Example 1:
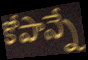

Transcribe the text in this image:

కోపాన్నే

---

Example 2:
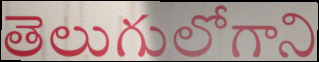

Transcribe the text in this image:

తెలుగులోగాని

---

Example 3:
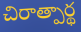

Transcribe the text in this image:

చిరాత్పార్థ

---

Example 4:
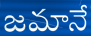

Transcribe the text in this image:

జమానే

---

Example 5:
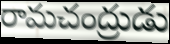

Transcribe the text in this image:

రామచంద్రుడు